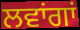
ਲਵਾਂਗਾਂ